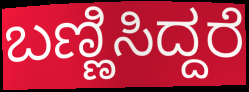
ಬಣ್ಣಿಸಿದ್ದರೆ